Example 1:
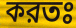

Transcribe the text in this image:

করতঃ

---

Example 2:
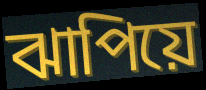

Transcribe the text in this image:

ঝাপিয়ে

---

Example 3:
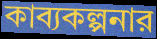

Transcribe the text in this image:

কাব্যকল্পনার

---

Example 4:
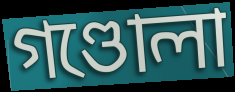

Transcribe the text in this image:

গণ্ডোলা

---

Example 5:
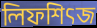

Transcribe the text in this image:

লিফশিৎজ